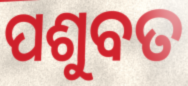
ପଶୁବତ